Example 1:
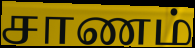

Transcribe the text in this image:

சாணம்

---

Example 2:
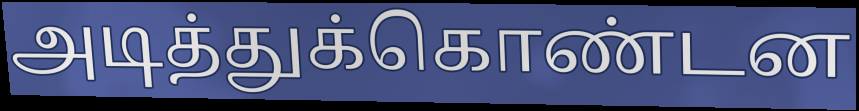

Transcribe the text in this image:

அடித்துக்கொண்டன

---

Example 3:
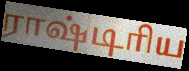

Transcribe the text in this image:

ராஷ்டிரிய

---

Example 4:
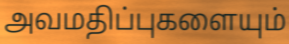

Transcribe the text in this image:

அவமதிப்புகளையும்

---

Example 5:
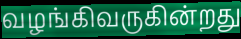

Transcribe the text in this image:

வழங்கிவருகின்றது